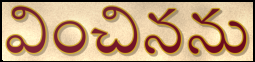
వించినను